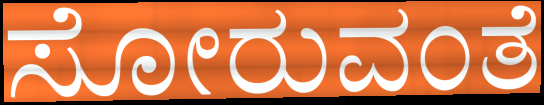
ಸೋರುವಂತೆ